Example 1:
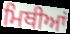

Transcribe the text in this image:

ਮਿਥੀਆਂ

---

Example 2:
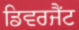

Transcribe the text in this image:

ਡਿਵਰਜੈਂਟ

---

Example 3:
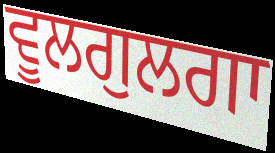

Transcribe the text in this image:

ਵੂਲਗੁਲਗਾ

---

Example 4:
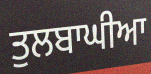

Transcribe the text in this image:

ਤੁਲਬਾਘੀਆ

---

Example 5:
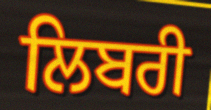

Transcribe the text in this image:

ਲਿਬਰੀ